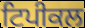
ਟਿਪੀਕਲ